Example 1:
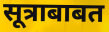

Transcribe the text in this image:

सूत्राबाबत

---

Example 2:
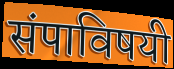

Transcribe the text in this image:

संपाविषयी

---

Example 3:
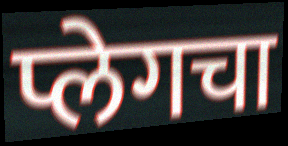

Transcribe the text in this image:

प्लेगचा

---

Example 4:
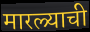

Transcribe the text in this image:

मारल्याची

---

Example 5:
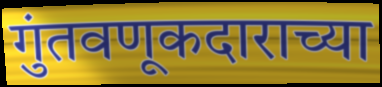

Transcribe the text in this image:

गुंतवणूकदाराच्या